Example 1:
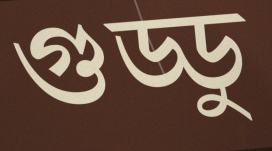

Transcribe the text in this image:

গুড্ডু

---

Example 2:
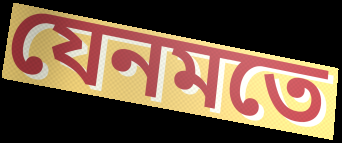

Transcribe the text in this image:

যেনমতে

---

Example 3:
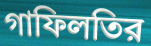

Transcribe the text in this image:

গাফিলতির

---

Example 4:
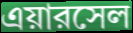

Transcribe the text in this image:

এয়ারসেল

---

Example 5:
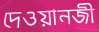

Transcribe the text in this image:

দেওয়ানজী